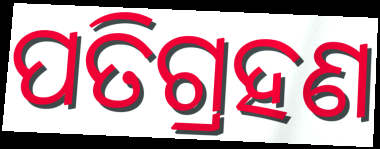
ପତିଗ୍ରହଣ